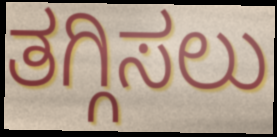
ತಗ್ಗಿಸಲು